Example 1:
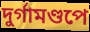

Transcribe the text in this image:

দুর্গামণ্ডপে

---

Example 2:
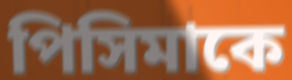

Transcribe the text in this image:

পিসিমাকে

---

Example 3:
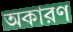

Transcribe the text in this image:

অকারণ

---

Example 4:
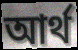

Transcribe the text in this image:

আর্থ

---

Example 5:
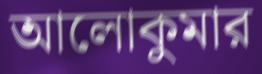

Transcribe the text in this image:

আলোকুমার